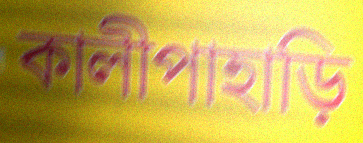
কালীপাহাড়ি